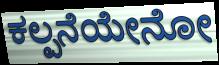
ಕಲ್ಪನೆಯೇನೋ